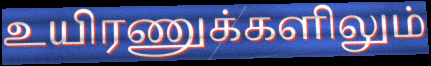
உயிரணுக்களிலும்